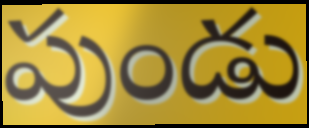
పుండు